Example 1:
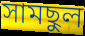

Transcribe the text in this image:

সামছুল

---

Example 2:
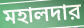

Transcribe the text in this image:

মহালদার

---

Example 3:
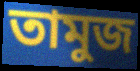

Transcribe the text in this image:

তামুজ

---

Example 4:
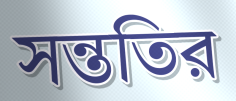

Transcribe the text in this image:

সন্ততির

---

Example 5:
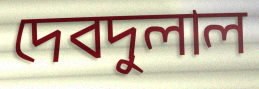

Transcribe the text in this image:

দেবদুলাল